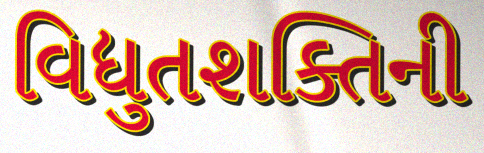
વિદ્યુતશક્તિની